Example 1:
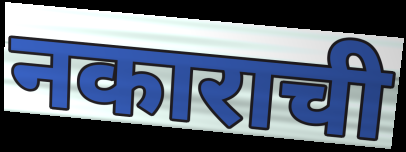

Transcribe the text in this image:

नकाराची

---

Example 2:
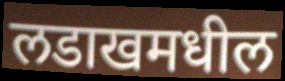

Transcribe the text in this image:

लडाखमधील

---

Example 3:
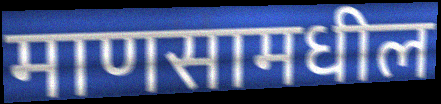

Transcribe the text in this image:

माणसामधील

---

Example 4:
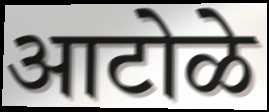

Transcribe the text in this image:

आटोळे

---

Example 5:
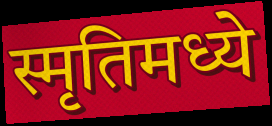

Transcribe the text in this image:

स्मृतिमध्ये